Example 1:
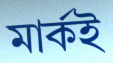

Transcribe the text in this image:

মার্কই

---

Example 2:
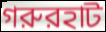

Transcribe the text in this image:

গরুরহাট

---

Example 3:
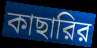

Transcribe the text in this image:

কাছারির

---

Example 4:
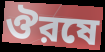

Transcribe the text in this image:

ঔরষে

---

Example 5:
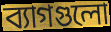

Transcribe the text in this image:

ব্যাগগুলো